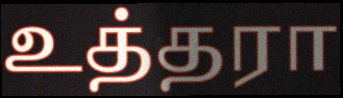
உத்தரா